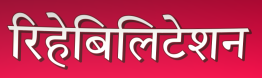
रिहेबिलिटेशन